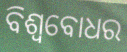
ବିଶ୍ବବୋଧର